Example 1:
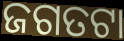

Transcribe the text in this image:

ଜଗତଟା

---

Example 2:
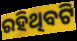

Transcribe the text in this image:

ରହିଥିବଟି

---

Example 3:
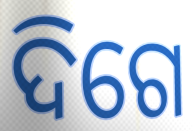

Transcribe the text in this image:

ଦିଗେ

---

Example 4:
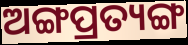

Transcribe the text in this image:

ଅଙ୍ଗପ୍ରତ୍ୟଙ୍ଗ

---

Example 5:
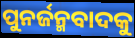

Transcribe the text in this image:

ପୁନର୍ଜନ୍ମବାଦକୁ